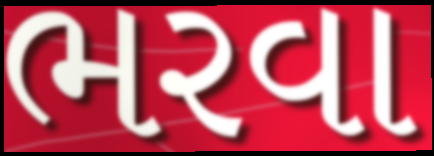
ભરવા